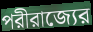
পরীরাজ্যের